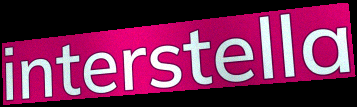
interstella